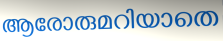
ആരോരുമറിയാതെ